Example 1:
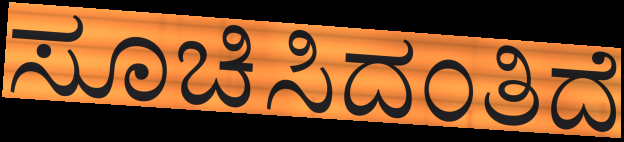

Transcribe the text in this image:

ಸೂಚಿಸಿದಂತಿದೆ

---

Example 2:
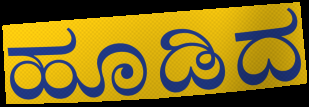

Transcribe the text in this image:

ಹೂಡಿದ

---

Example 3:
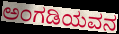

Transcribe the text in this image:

ಅಂಗಡಿಯವನ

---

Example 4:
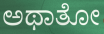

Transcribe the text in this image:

ಅಥಾತೋ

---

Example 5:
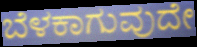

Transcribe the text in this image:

ಬೆಳಕಾಗುವುದೇ